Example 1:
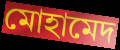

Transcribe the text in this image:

মোহামেদ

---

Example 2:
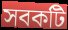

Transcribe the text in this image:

সবকটি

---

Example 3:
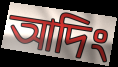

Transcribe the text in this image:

আদিং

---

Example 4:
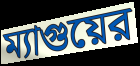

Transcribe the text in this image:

ম্যাগুয়ের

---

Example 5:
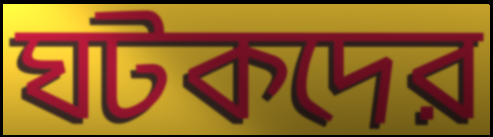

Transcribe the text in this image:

ঘটকদের